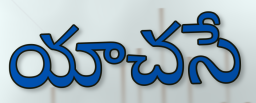
యాచసే